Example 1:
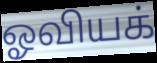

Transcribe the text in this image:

ஓவியக்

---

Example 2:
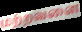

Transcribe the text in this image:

மற்றவளை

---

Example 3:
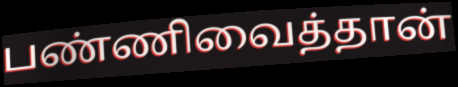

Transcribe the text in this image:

பண்ணிவைத்தான்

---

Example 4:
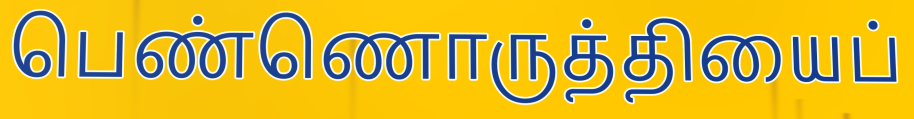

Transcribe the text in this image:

பெண்ணொருத்தியைப்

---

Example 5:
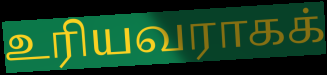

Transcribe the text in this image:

உரியவராகக்